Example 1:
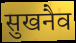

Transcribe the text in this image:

सुखनैव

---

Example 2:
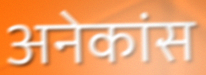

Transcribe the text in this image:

अनेकांस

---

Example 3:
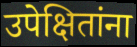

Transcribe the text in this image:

उपेक्षितांना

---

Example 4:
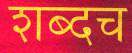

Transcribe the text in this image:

शब्दच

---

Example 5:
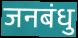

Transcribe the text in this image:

जनबंधु